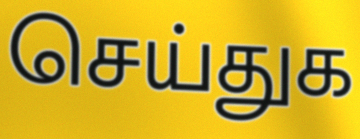
செய்துக